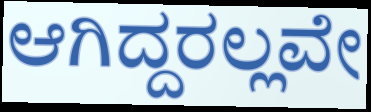
ಆಗಿದ್ದರಲ್ಲವೇ